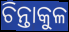
ଚିନ୍ତାକୁଳ